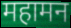
महामन